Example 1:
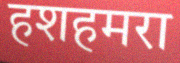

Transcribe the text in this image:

हशहमरा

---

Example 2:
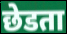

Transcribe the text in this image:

छेडता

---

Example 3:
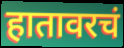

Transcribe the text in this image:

हातावरचं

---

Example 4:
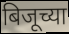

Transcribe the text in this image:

बिजूच्या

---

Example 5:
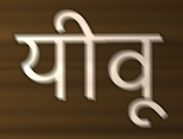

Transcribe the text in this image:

यीवू